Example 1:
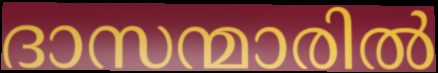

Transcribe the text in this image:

ദാസന്മാരിൽ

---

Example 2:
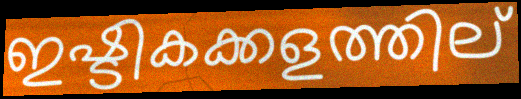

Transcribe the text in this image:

ഇഷ്ടികക്കളത്തില്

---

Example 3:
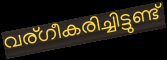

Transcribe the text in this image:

വര്ഗീകരിച്ചിട്ടുണ്ട്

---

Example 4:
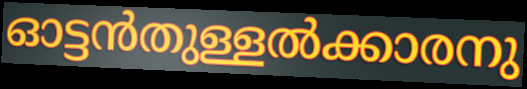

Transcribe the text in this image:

ഓട്ടൻതുള്ളൽക്കാരനു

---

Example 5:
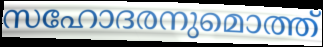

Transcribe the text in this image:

സഹോദരനുമൊത്ത്